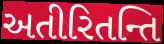
અતીરિતન્તિ